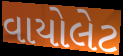
વાયોલેટ